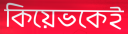
কিয়েভকেই